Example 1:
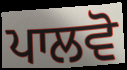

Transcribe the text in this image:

ਪਾਲਵੋ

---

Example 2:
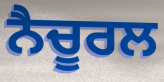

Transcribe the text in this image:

ਨੈਚੂਰਲ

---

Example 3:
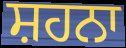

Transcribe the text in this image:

ਸ਼ਹਨਾ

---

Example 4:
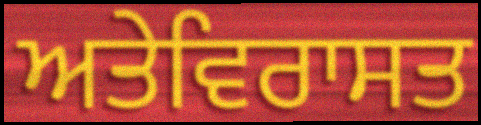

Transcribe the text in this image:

ਅਤੇਵਿਰਾਸਤ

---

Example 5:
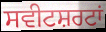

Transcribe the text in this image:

ਸਵੀਟਸ਼ਰਟਾਂ